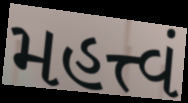
મહત્ત્વં